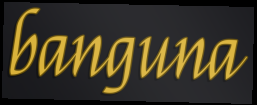
banguna